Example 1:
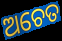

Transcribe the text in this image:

ଅଚେତ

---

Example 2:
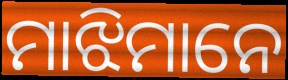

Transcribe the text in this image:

ମାଝିମାନେ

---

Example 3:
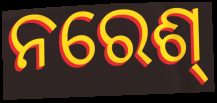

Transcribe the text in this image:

ନରେଶ୍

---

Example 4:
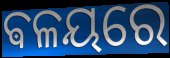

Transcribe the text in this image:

ଵଳୟରେ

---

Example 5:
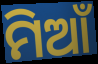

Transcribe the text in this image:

ମିଆଁ